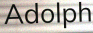
Adolph